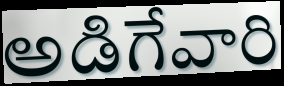
అడిగేవారి